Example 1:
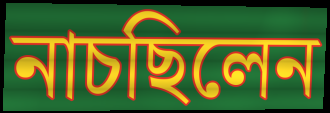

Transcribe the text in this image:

নাচছিলেন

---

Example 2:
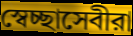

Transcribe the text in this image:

স্বেচ্ছাসেবীরা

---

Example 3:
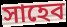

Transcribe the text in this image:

সাহেব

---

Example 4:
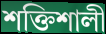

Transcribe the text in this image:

শক্তিশালী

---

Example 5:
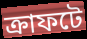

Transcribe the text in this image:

ক্রাফটে